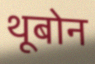
थूबोन